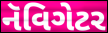
નૅવિગેટર